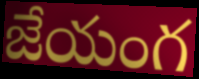
జేయంగ